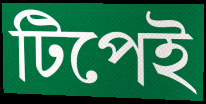
টিপেই